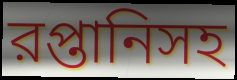
রপ্তানিসহ